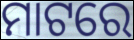
ମାଟରେ